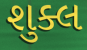
શુક્લ